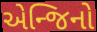
એન્જિનો